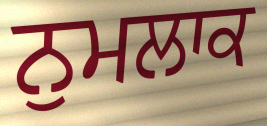
ਨੁਮਲਾਕ